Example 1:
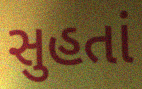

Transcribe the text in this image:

સુહતાં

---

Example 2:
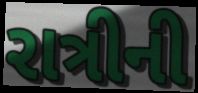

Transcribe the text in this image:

રાત્રીની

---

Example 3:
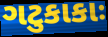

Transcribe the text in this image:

ગટુકાકાઃ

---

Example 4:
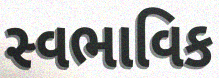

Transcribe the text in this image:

સ્વભાવિક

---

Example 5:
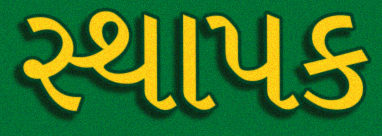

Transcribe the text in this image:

સ્થાપક